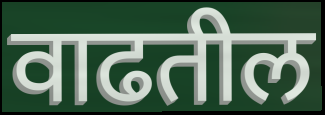
वाढतील